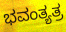
ಭವಂತ್ಯತ್ರ